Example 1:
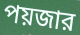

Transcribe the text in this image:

পয়জার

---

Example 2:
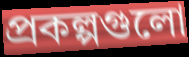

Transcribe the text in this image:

প্রকল্পগুলো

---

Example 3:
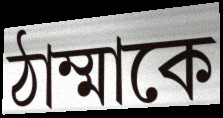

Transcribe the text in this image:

ঠাম্মাকে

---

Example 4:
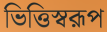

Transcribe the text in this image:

ভিত্তিস্বরূপ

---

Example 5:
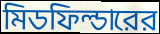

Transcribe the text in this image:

মিডফিল্ডারের